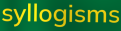
syllogisms